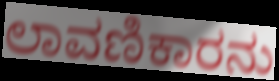
ಲಾವಣಿಕಾರನು